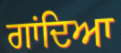
ਗਾਂਦਿਆ